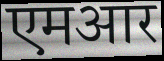
एमआर